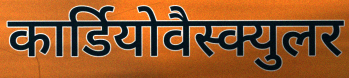
कार्डियोवैस्क्युलर